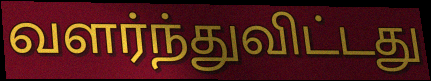
வளர்ந்துவிட்டது